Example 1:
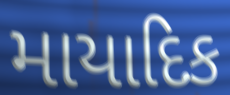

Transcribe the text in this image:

માયાદિક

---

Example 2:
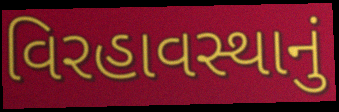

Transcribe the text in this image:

વિરહાવસ્થાનું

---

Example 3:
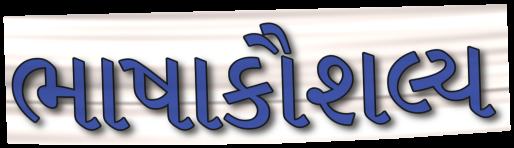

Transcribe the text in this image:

ભાષાકૌશલ્ય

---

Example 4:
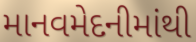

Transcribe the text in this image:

માનવમેદનીમાંથી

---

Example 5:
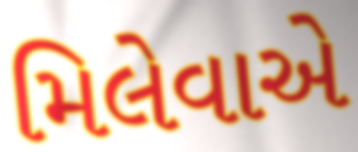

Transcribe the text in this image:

મિલેવાએ